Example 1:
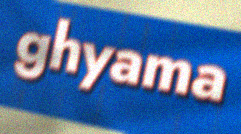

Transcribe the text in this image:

ghyama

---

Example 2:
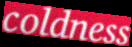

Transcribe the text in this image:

coldness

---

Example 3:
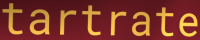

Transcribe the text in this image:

tartrate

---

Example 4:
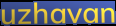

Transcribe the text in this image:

uzhavan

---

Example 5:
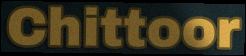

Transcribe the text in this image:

Chittoor